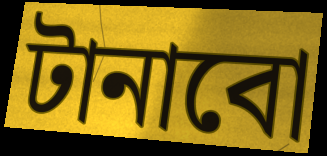
টানাবো